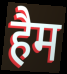
हैम